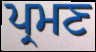
ਪ੍ਰਮਣ